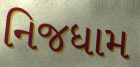
નિજધામ